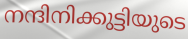
നന്ദിനിക്കുട്ടിയുടെ